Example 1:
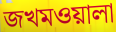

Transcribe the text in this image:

জখমওয়ালা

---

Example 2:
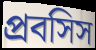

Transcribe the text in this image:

প্রবসিস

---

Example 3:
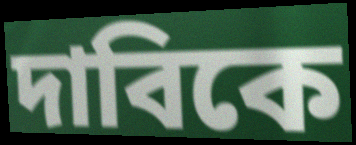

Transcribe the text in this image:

দাবিকে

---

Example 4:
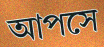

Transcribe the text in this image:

আপসে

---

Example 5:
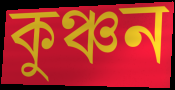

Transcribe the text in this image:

কুঞ্চন